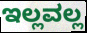
ಇಲ್ಲವಲ್ಲ